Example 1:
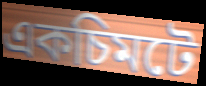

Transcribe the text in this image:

একচিমটে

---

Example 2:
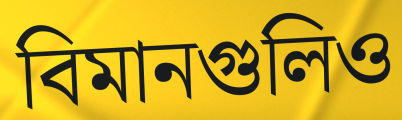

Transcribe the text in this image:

বিমানগুলিও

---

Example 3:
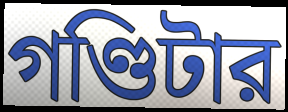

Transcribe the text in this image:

গণ্ডিটার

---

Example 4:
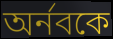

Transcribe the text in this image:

অর্নবকে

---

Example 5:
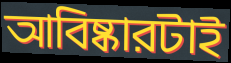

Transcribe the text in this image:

আবিষ্কারটাই